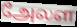
அேலள